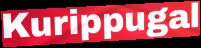
Kurippugal